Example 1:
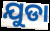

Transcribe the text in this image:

ଯୁଡା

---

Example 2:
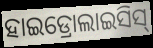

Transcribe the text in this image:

ହାଇଡ୍ରୋଲାଇସିସ୍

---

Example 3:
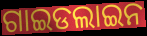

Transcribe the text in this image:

ଗାଇଡଲାଇନ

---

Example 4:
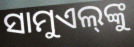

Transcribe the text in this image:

ସାମୁଏଲ୍‌ଙ୍କୁ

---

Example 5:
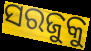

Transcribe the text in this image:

ସରଜୁକୁ